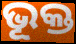
ଭୂକ୍ତ